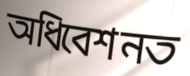
অধিবেশনত